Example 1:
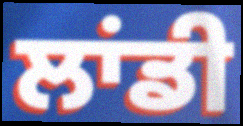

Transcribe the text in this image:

ਲਾਂਡੀ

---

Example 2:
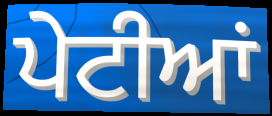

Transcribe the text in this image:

ਪੇਟੀਆਂ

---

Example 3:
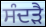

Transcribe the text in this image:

ਸੰਦੜੈ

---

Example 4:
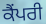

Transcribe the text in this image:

ਕੈਂਪਰੀ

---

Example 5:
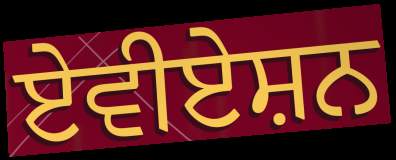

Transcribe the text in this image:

ਏਵੀਏਸ਼ਨ